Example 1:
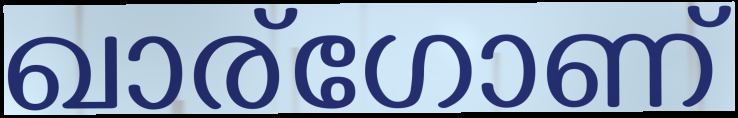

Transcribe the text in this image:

ഖാര്ഗോണ്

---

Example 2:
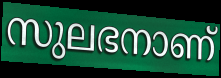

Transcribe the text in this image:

സുലഭനാണ്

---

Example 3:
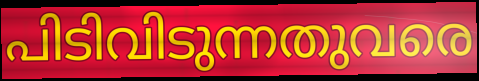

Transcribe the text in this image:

പിടിവിടുന്നതുവരെ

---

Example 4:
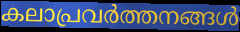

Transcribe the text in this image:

കലാപ്രവർത്തനങ്ങൾ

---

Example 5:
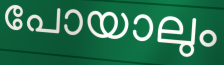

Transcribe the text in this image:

പോയാലും